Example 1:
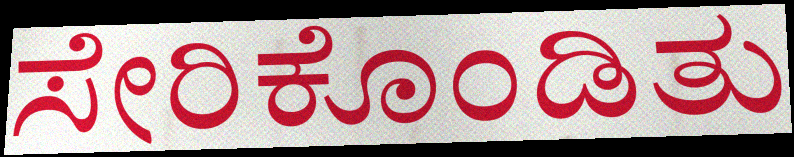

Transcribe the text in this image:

ಸೇರಿಕೊಂಡಿತು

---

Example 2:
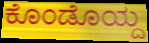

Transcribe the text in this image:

ಕೊಂಡೊಯ್ದ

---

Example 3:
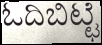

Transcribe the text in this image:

ಓದಿಬಿಟ್ಟೆ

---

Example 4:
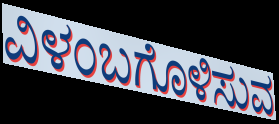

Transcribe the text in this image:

ವಿಳಂಬಗೊಳಿಸುವ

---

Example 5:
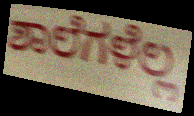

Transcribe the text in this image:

ಶಾಲೆಗಳೆಲ್ಲ